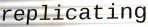
replicating